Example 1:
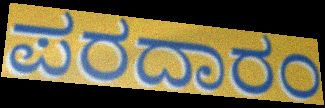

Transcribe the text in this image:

ಪರದಾರಂ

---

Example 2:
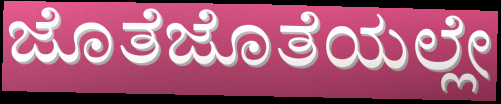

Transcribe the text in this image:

ಜೊತೆಜೊತೆಯಲ್ಲೇ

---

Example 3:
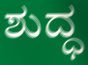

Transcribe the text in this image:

ಶುದ್ಧ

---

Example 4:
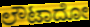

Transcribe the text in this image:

ಲೌಟಾದೋ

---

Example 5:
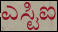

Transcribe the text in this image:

ಎಸ್ಟಿಐ